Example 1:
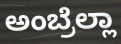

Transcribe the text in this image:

ಅಂಬ್ರೆಲ್ಲಾ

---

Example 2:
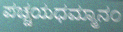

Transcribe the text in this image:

ಪಚ್ಚಯಧಮ್ಮಾನಂ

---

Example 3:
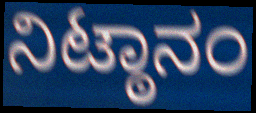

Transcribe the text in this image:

ನಿಟ್ಠಾನಂ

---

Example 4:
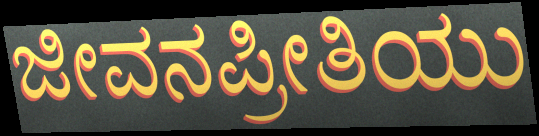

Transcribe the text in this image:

ಜೀವನಪ್ರೀತಿಯು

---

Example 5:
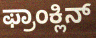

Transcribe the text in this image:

ಫ್ರಾಂಕ್ಲಿನ್